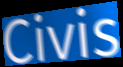
Civis